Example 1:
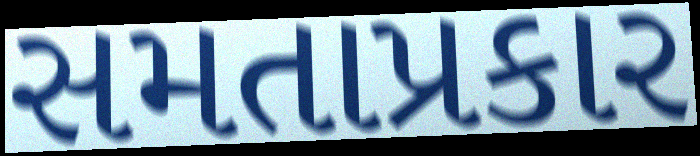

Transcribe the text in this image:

સમતાપ્રકાર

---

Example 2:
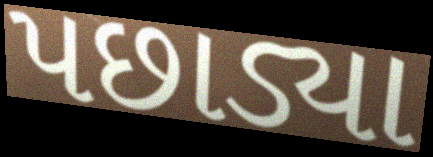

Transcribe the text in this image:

પછાડ્યા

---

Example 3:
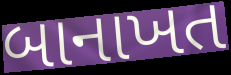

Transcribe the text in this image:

બાનાખત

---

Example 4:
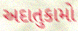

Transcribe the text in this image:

અદાતુકામો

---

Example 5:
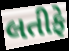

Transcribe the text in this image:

લતીફે